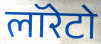
लॉरेटो